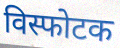
विस्फोटक